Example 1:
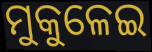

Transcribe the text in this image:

ମୁକୁଳେଇ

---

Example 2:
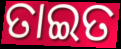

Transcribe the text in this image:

ତାଇତ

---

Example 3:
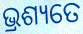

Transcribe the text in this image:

ଭ୍ରଶ୍ୟତେ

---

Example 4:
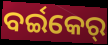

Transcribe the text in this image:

ବର୍ଇକେର୍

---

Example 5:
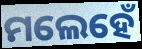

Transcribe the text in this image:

ମଲେହେଁ